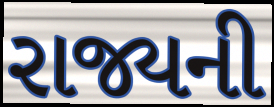
રાજ્યની